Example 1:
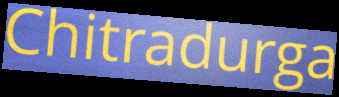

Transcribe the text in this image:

Chitradurga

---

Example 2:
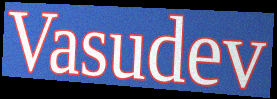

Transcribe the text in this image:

Vasudev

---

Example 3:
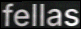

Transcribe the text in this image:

fellas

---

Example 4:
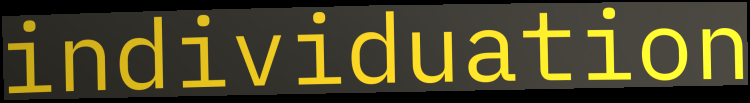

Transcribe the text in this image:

individuation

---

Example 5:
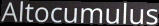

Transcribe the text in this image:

Altocumulus